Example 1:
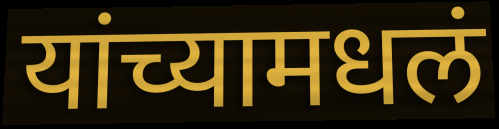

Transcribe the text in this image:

यांच्यामधलं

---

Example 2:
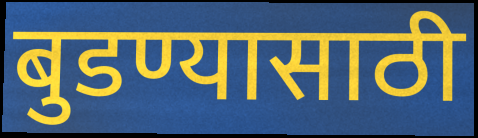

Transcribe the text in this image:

बुडण्यासाठी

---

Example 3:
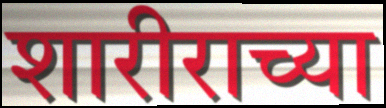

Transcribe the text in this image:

शारीराच्या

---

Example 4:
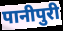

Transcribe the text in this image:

पानीपुरी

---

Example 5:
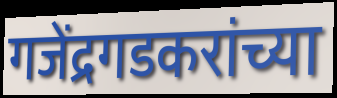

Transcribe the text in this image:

गजेंद्रगडकरांच्या